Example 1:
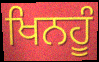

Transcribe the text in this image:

ਖਿਨਹੂੰ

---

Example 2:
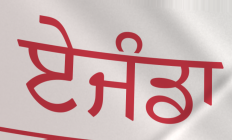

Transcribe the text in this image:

ਏਜੰਡਾ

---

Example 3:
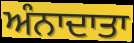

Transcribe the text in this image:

ਅੰਨਾਦਾਤਾ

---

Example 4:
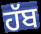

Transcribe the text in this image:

ਹੱਬ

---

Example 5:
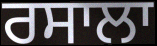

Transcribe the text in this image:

ਰਸਾਲਾ